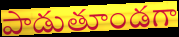
పాడుతూండగా